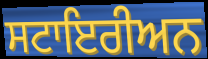
ਸਟਾਇਰੀਅਨ